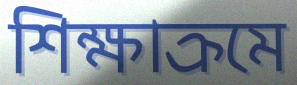
শিক্ষাক্রমে